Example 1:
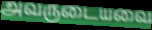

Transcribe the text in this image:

அவருடையவை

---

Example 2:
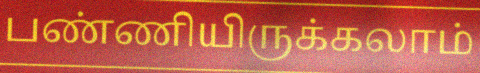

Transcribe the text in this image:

பண்ணியிருக்கலாம்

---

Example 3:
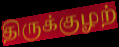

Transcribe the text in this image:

திருக்குழற்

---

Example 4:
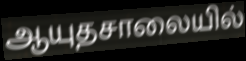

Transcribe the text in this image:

ஆயுதசாலையில்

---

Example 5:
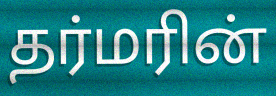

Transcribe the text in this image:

தர்மரின்